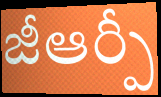
జీఆర్పీ